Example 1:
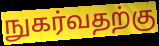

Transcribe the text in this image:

நுகர்வதற்கு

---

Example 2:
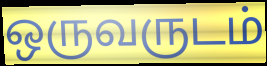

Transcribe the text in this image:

ஒருவருடம்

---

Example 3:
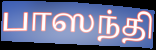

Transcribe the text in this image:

பாஸந்தி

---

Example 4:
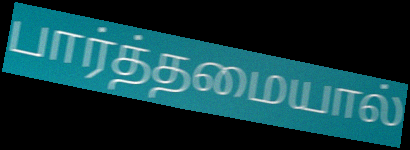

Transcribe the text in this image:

பார்த்தமையால்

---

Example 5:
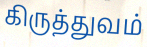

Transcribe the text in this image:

கிருத்துவம்